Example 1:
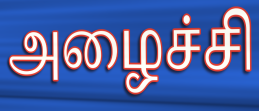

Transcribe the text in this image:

அழைச்சி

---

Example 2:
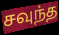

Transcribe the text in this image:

சவுந்த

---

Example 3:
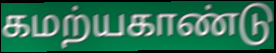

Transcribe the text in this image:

கமற்யகாண்டு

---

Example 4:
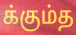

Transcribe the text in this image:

க்கும்த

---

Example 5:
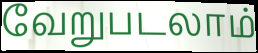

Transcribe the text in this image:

வேறுபடலாம்